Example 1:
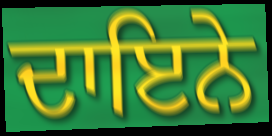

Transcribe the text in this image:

ਦਾਇਨੇ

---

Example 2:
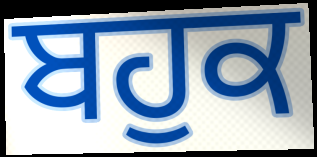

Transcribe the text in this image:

ਬਹੁਕ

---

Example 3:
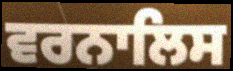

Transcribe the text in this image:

ਵਰਨਾਲਿਸ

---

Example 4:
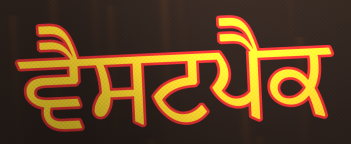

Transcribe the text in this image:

ਵੈਸਟਪੈਕ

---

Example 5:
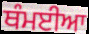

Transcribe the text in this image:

ਥੰਮਈਆ